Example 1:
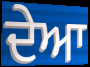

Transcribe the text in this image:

ਦੇਆ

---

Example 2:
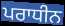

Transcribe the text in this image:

ਪਰਾਧੀਨ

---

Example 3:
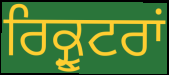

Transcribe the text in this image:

ਰਿਕ੍ਰੂਟਰਾਂ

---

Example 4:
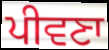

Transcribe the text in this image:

ਪੀਵਣਾ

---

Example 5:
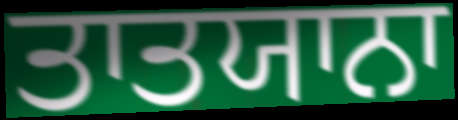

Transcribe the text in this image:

ਤਾਤਯਾਨਾ